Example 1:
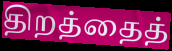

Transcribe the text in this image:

திறத்தைத்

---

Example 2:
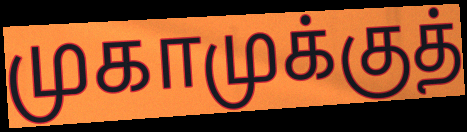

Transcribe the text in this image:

முகாமுக்குத்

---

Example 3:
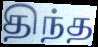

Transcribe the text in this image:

திந்த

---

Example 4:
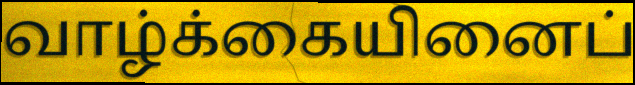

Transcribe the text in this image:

வாழ்க்கையினைப்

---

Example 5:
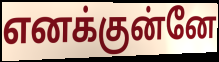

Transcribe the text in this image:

எனக்குன்னே